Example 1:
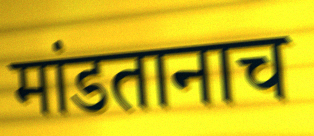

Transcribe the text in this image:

मांडतानाच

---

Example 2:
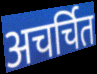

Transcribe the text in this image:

अचर्चित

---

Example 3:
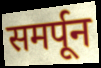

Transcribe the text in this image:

समर्पून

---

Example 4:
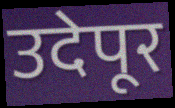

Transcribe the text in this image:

उदेपूर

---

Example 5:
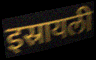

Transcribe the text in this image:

इस्रायली